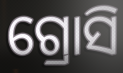
ଗ୍ରୋସି